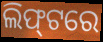
ଲିଫ୍‍ଟରେ